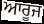
ਆਰੂਜ